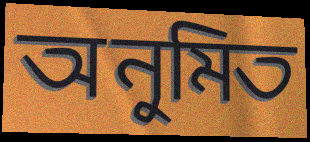
অনুমিত